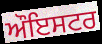
ਔਇਸਟਰ